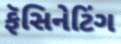
ફૅસિનેટિંગ